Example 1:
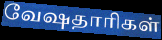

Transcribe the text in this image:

வேஷதாரிகள்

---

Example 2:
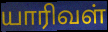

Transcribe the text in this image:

யாரிவள்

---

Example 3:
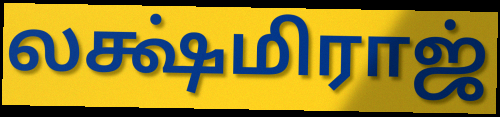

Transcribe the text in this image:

லக்ஷ்மிராஜ்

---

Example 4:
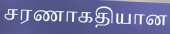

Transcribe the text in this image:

சரணாகதியான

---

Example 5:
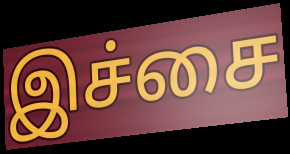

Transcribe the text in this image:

இச்சை